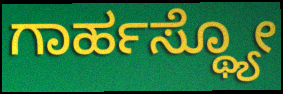
ಗಾರ್ಹಸ್ಥ್ಯೋ